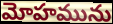
మోహమును